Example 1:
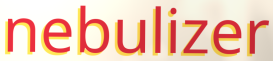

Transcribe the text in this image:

nebulizer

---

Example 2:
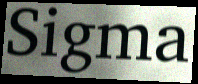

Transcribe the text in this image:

Sigma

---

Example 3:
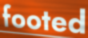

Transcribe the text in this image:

footed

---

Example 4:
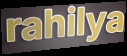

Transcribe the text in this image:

rahilya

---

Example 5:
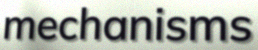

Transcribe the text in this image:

mechanisms